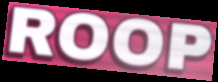
ROOP